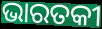
ଭାରତକୀ